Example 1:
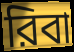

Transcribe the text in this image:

রিবা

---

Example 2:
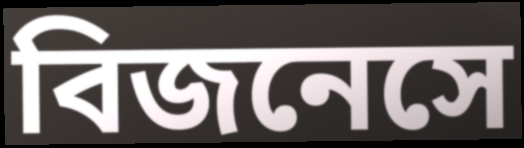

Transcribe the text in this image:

বিজনেসে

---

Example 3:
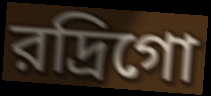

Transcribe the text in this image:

রদ্রিগো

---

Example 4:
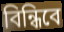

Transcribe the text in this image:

বিন্ধিবে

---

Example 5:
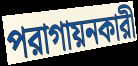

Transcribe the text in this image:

পরাগায়নকারী